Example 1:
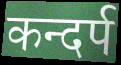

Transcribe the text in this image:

कन्दर्प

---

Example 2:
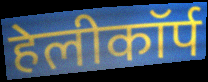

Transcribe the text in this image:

हेलीकॉर्प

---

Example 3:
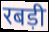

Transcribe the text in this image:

रबड़ी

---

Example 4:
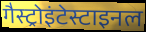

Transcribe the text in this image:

गैस्ट्रोइंटेस्टाइनल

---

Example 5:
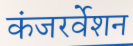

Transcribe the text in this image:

कंजरर्वेशन